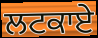
ਲਟਕਾਏ